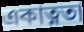
একাত্নতা